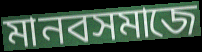
মানবসমাজে